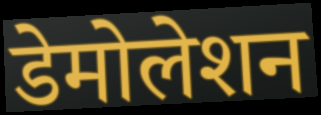
डेमोलेशन